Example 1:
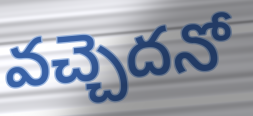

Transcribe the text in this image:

వచ్చెదనో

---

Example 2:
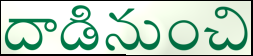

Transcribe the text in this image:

దాడినుంచి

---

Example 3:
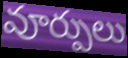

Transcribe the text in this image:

వూర్పులు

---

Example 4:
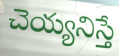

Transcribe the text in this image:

చెయ్యనిస్తే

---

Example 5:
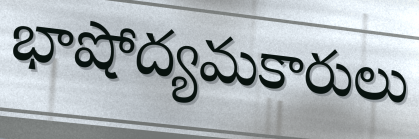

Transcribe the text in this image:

భాషోద్యమకారులు